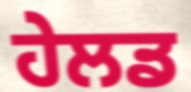
ਹੇਲਡ